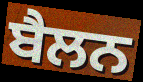
ਬੈਲਨ